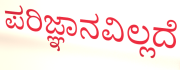
ಪರಿಜ್ಞಾನವಿಲ್ಲದೆ